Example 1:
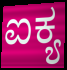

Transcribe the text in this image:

ಐಕ್ಯ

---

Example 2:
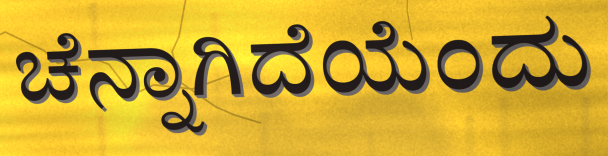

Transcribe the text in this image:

ಚೆನ್ನಾಗಿದೆಯೆಂದು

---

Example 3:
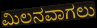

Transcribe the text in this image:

ಮಿಲನವಾಗಲು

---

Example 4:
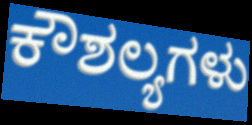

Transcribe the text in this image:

ಕೌಶಲ್ಯಗಳು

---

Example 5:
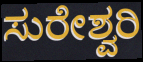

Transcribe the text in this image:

ಸುರೇಶ್ವರಿ